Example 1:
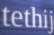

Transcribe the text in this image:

tethij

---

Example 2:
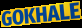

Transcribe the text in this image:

GOKHALE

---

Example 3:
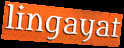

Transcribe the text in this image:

lingayat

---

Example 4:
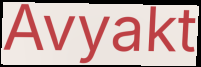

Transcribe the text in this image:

Avyakt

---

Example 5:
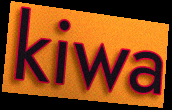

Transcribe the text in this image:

kiwa